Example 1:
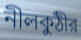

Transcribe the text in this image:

নীলকুঠীর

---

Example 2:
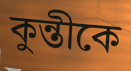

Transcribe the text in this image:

কুন্তীকে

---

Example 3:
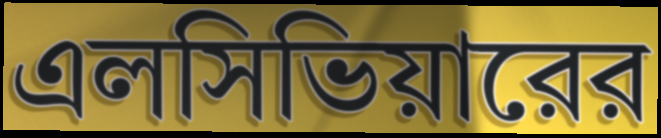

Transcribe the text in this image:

এলসিভিয়ারের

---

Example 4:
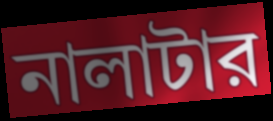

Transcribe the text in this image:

নালাটার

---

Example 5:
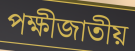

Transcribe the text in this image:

পক্ষীজাতীয়